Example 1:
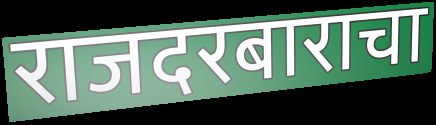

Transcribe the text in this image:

राजदरबाराचा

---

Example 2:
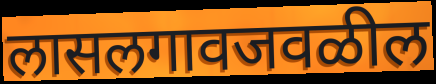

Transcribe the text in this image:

लासलगावजवळील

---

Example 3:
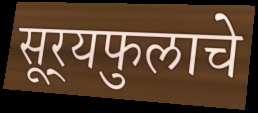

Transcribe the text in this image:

सूर्यफुलाचे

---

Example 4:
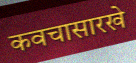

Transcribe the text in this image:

कवचासारखे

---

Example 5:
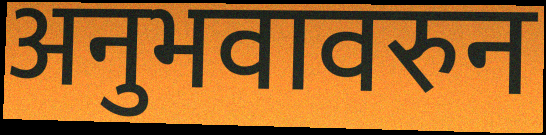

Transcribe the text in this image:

अनुभवावरुन